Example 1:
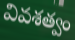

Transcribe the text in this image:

వివశత్వం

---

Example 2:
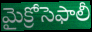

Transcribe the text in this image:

మైక్రోసెఫాలీ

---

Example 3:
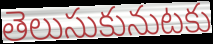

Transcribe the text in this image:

తెలుసుకునుటకు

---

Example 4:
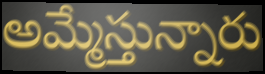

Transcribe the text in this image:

అమ్మేస్తున్నారు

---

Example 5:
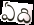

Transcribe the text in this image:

ఏది